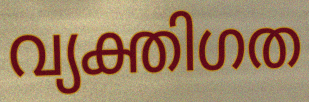
വ്യക്തിഗത